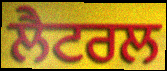
ਲੈਟਰਲ